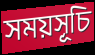
সময়সূচি